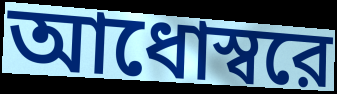
আধোস্বরে